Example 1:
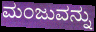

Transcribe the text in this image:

ಮಂಜುವನ್ನು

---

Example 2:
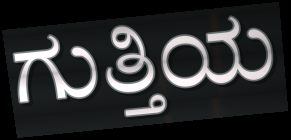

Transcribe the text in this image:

ಗುತ್ತಿಯ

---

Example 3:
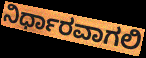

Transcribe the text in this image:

ನಿರ್ಧಾರವಾಗಲಿ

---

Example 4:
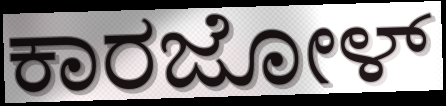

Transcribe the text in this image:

ಕಾರಜೋಳ್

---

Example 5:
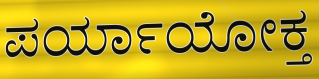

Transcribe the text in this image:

ಪರ್ಯಾಯೋಕ್ತ